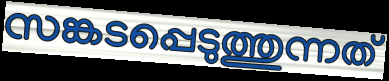
സങ്കടപ്പെടുത്തുന്നത്